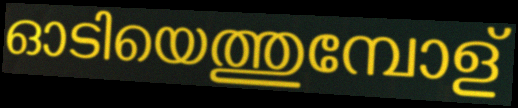
ഓടിയെത്തുമ്പോള്